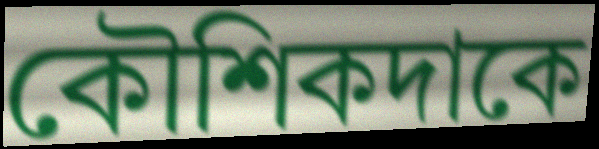
কৌশিকদাকে